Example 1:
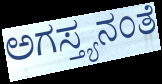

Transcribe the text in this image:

ಅಗಸ್ತ್ಯನಂತೆ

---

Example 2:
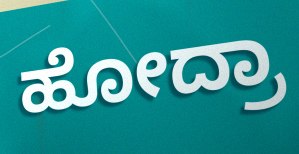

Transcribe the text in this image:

ಹೋದ್ರಾ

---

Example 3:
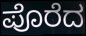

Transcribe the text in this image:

ಪೊರೆದ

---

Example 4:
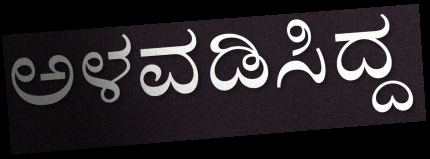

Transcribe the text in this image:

ಅಳವಡಿಸಿದ್ದ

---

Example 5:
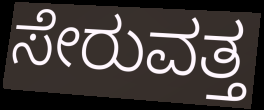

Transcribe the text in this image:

ಸೇರುವತ್ತ